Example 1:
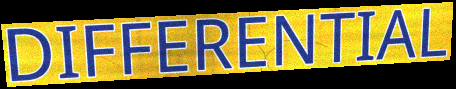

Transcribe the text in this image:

DIFFERENTIAL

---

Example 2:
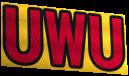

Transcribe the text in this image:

UWU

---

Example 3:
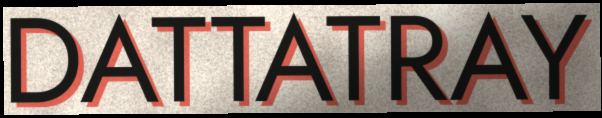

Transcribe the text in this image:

DATTATRAY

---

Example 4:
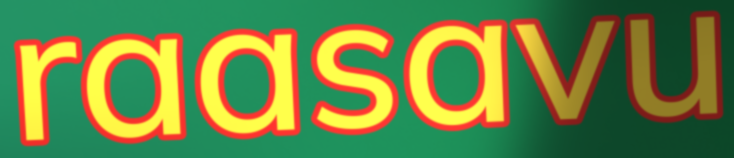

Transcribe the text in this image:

raasavu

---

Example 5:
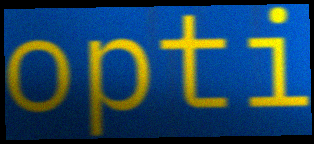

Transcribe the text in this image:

opti